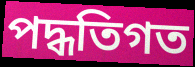
পদ্ধতিগত